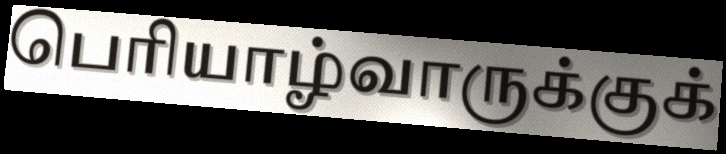
பெரியாழ்வாருக்குக்